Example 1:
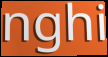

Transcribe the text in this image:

nghi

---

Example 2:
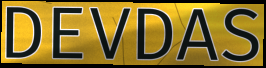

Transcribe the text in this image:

DEVDAS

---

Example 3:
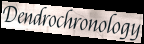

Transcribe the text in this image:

Dendrochronology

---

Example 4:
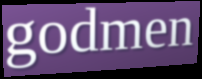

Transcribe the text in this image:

godmen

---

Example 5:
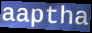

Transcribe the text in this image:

aaptha